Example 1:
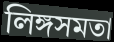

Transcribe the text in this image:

লিঙ্গসমতা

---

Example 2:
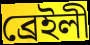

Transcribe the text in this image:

ব্রেইলী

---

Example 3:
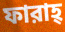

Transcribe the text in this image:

ফারাহ্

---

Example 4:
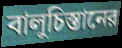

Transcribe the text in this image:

বালুচিস্তানের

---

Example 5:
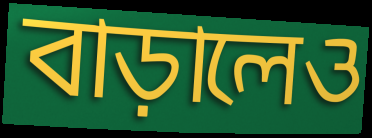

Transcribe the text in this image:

বাড়ালেও